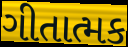
ગીતાત્મક